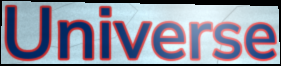
Universe